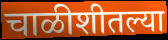
चाळीशीतल्या